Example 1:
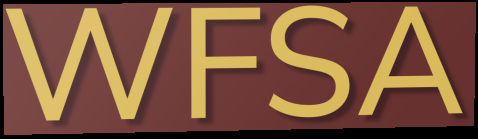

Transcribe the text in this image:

WFSA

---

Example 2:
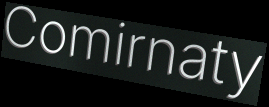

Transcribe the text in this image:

Comirnaty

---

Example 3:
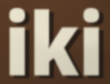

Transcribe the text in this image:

iki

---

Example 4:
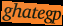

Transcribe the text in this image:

ghategp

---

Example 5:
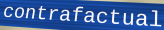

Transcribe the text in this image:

contrafactual